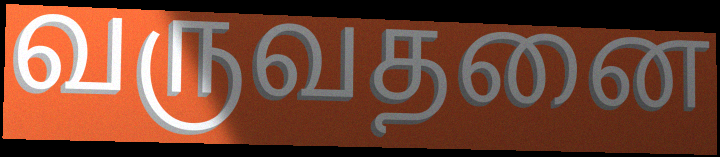
வருவதனை